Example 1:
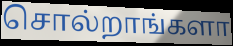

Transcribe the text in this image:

சொல்றாங்களா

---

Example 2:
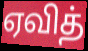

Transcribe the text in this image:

ஏவித்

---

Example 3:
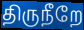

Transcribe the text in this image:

திருநீறே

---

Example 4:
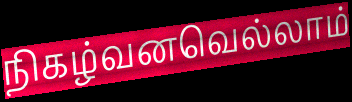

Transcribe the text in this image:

நிகழ்வனவெல்லாம்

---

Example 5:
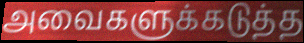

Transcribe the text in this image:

அவைகளுக்கடுத்த